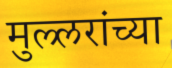
मुल्लरांच्या